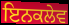
ਇਨਕਲੇਵ